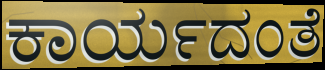
ಕಾರ್ಯದಂತೆ